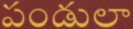
పండులా